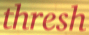
thresh